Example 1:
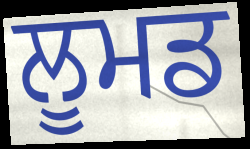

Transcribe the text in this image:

ਲੂਮਡ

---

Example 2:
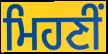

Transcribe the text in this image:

ਮਿਹਣੀਂ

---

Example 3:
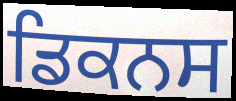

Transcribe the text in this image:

ਡਿਕਨਸ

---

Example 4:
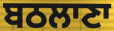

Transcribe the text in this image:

ਬਠਲਾਣਾ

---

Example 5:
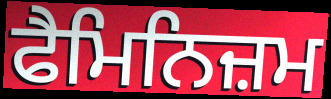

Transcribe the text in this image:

ਫੈਮਿਨਿਜ਼ਮ